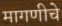
मागणीचे